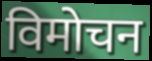
विमोचन